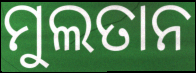
ମୁଲତାନ